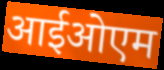
आईओएम